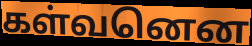
கள்வனென